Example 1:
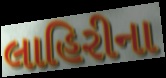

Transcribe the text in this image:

લાહિરીના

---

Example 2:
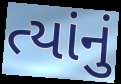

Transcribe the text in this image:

ત્યાંનું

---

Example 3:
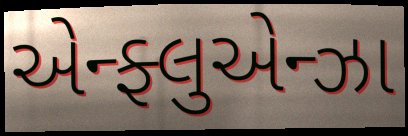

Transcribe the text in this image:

એન્ફ્લુએન્ઝા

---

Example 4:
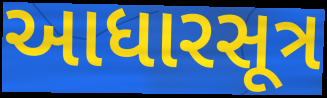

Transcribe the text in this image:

આધારસૂત્ર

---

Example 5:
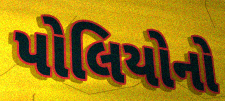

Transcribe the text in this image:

પોલિયોનો